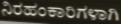
ನಿರಹಂಕಾರಿಗಳಾಗಿ